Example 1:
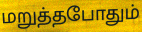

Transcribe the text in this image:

மறுத்தபோதும்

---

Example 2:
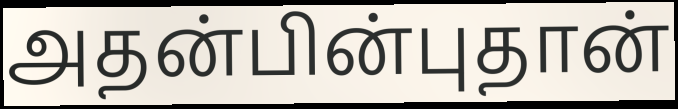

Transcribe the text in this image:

அதன்பின்புதான்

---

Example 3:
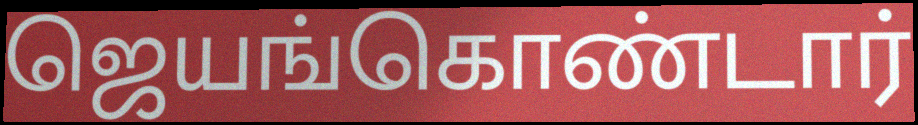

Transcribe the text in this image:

ஜெயங்கொண்டார்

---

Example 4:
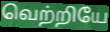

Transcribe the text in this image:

வெற்றியே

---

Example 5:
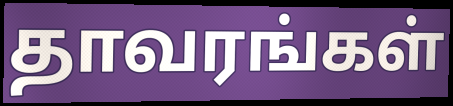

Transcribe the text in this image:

தாவரங்கள்